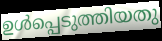
ഉൾപ്പെടുത്തിയതു